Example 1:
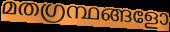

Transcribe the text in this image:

മതഗ്രന്ഥങ്ങളോ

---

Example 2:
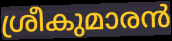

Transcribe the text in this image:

ശ്രീകുമാരൻ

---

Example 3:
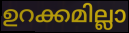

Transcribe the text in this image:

ഉറക്കമില്ലാ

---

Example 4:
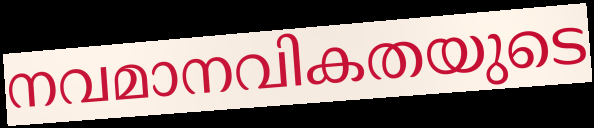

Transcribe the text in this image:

നവമാനവികതയുടെ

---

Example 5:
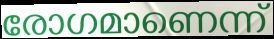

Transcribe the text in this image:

രോഗമാണെന്ന്